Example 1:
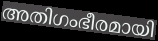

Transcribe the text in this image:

അതിഗംഭീരമായി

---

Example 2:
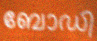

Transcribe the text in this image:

ബോഡി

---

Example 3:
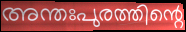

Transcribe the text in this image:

അന്തഃപുരത്തിന്റെ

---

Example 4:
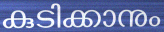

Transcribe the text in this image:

കുടിക്കാനും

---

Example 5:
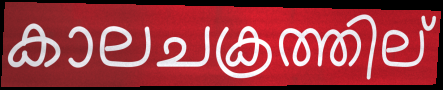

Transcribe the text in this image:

കാലചക്രത്തില്